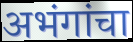
अभंगांचा